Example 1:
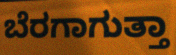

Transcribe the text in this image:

ಬೆರಗಾಗುತ್ತಾ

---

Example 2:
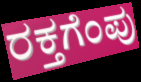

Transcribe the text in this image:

ರಕ್ತಗೆಂಪು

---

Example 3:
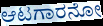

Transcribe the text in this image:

ಆಟಗಾರನೋ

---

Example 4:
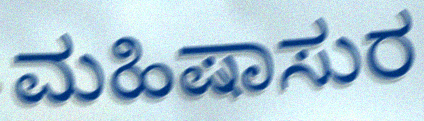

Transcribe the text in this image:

ಮಹಿಷಾಸುರ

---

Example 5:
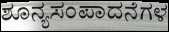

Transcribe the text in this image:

ಶೂನ್ಯಸಂಪಾದನೆಗಳ